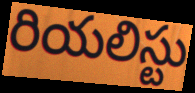
రియలిస్టు